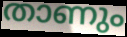
താണും